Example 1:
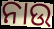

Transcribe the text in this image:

ନାଉ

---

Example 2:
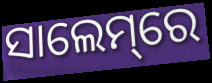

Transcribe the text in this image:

ସାଲେମ୍‌ରେ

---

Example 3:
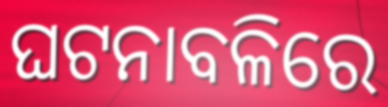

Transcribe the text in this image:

ଘଟନାବଳିରେ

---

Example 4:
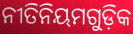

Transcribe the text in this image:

ନୀତିନିୟମଗୁଡ଼ିକ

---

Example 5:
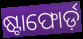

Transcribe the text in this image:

ଷ୍ଟାଫୋର୍ଡ଼